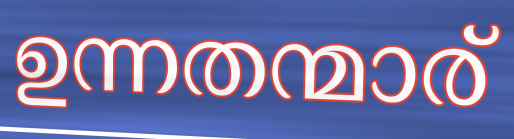
ഉന്നതന്മാര്